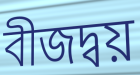
বীজদ্বয়